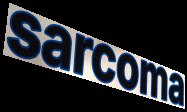
sarcoma